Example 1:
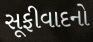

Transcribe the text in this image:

સૂફીવાદનો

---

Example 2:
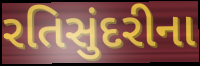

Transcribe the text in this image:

રતિસુંદરીના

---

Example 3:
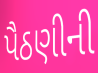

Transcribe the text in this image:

પૈઠણીની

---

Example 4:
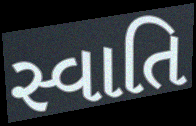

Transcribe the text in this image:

સ્વાતિ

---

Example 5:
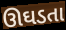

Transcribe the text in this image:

ઊઘડતા